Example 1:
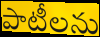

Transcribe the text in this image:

పాటీలను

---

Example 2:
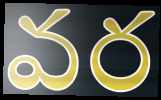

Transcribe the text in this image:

వర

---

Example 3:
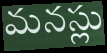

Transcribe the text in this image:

మనస్లు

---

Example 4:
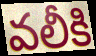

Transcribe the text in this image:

వలీకి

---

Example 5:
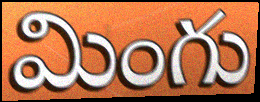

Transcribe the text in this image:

మింగు